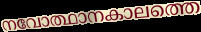
നവോത്ഥാനകാലത്തെ